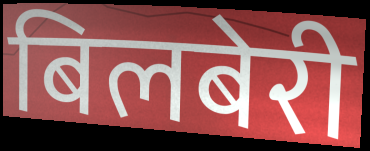
बिलबेरी